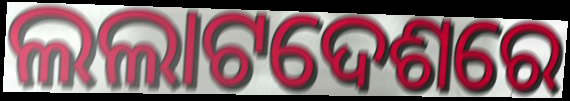
ଲଲାଟଦେଶରେ